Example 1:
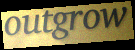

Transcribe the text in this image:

outgrow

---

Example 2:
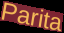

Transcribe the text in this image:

Parita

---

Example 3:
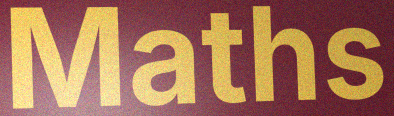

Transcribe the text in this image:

Maths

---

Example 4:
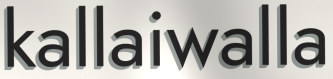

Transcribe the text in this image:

kallaiwalla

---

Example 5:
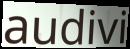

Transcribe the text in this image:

audivi